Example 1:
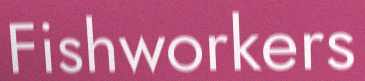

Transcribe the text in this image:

Fishworkers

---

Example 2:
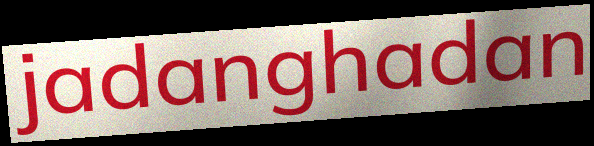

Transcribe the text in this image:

jadanghadan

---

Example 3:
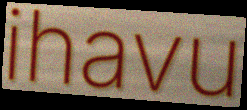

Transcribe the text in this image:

ihavu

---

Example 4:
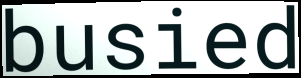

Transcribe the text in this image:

busied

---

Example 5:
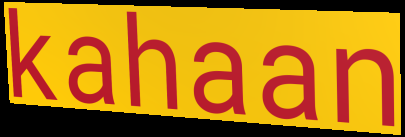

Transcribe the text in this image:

kahaan